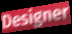
Designer